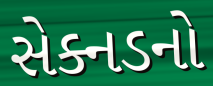
સેક્નડનો